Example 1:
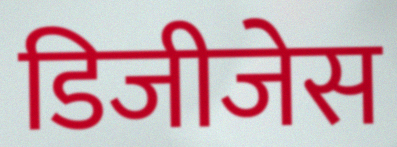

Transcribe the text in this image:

डिजीजेस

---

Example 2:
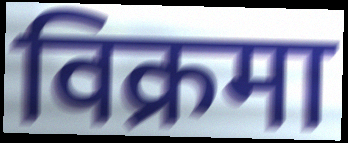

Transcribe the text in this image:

विक्रमा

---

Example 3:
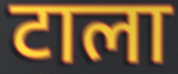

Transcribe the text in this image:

टाला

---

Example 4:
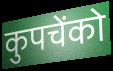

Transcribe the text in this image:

कुपचेंको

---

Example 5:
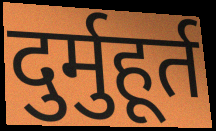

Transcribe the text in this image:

दुर्मुहूर्त